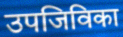
उपजिविका